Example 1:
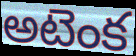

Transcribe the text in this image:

అటెంక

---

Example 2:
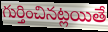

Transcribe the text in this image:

గుర్తించినట్లయితే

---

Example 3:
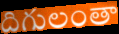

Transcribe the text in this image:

దిగులంతా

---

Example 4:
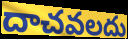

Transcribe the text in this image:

దాచవలదు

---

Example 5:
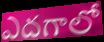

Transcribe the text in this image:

ఎదగాలో